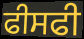
ਫੀਸਫੀ